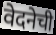
वेदनेची